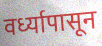
वर्ध्यापासून